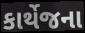
કાર્થેજના